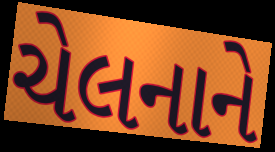
ચેલનાને